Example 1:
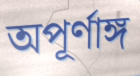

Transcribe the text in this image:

অপূর্ণাঙ্গ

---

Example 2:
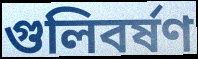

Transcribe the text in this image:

গুলিবর্ষণ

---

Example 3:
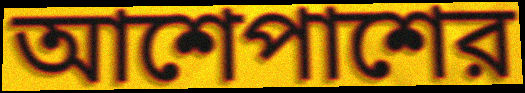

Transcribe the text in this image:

আশেপাশের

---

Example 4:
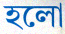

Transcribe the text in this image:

হলো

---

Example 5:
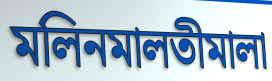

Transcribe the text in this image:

মলিনমালতীমালা